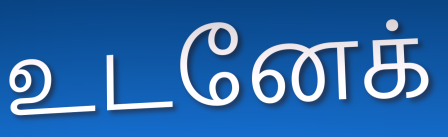
உடனேக்